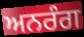
ਅਨਰੰਗ